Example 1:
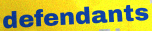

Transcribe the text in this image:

defendants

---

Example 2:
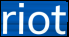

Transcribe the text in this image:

riot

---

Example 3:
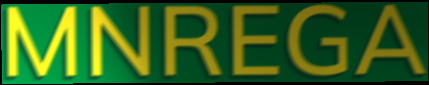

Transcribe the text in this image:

MNREGA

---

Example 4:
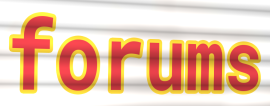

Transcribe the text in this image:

forums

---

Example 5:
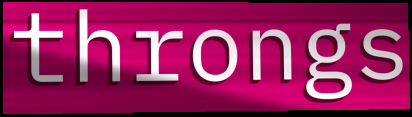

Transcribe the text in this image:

throngs